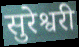
सुरेश्वरी